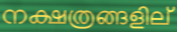
നക്ഷത്രങ്ങളില്